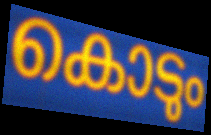
കൊടും